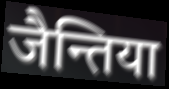
जैन्तिया